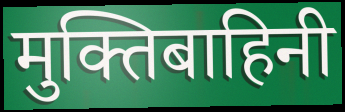
मुक्तिबाहिनी